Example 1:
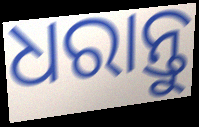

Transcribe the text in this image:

ଧରାନ୍ତୁ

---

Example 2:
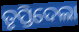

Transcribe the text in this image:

ତୃପ୍ତିଦେଲା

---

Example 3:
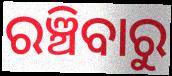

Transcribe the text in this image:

ରଞ୍ଚିବାରୁ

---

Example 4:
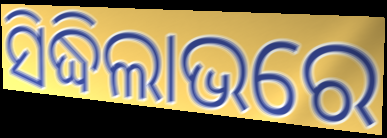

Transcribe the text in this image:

ସିଦ୍ଧିଲାଭରେ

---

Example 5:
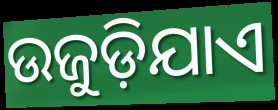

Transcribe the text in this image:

ଉଜୁଡ଼ିଯାଏ